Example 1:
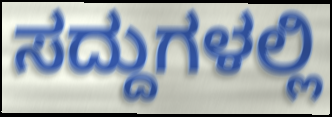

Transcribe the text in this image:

ಸದ್ದುಗಳಲ್ಲಿ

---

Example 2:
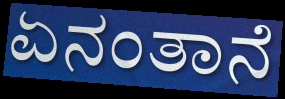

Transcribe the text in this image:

ಏನಂತಾನೆ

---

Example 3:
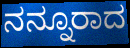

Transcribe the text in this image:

ನನ್ನೂರಾದ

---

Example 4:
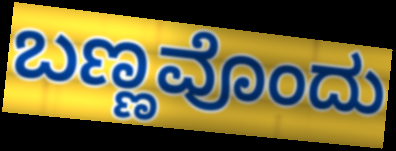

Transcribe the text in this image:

ಬಣ್ಣವೊಂದು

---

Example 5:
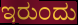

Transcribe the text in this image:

ಇರುಂದು